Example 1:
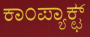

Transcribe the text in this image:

ಕಾಂಪ್ಯಾಕ್ಟ್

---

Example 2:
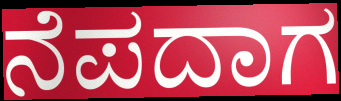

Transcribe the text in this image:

ನೆಪದಾಗ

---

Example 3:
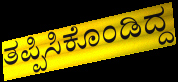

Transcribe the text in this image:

ತಪ್ಪಿಸಿಕೊಂಡಿದ್ದ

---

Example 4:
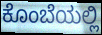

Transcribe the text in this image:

ಕೊಂಬೆಯಲ್ಲಿ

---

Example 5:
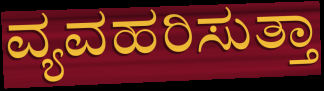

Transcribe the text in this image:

ವ್ಯವಹರಿಸುತ್ತಾ